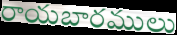
రాయబారములు